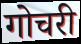
गोचरी